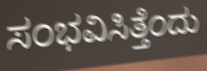
ಸಂಭವಿಸಿತ್ತೆಂದು